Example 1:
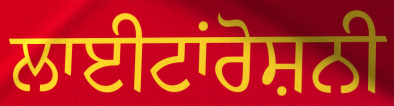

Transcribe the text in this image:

ਲਾਈਟਾਂਰੋਸ਼ਨੀ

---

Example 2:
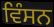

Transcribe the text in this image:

ਵਿੰਸਨ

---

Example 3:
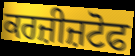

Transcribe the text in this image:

ਕਰਜ਼ੀਜ਼ਟੋਫ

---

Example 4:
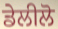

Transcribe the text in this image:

ਡੇਲੀਲੋ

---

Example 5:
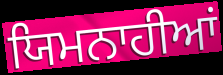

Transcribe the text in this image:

ਯਿਮਨਾਹੀਆਂ